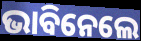
ଭାବିନେଲେ